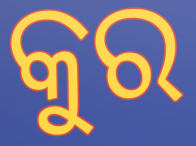
କୁର